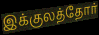
இக்குலத்தோர்